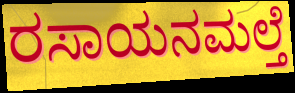
ರಸಾಯನಮಲ್ತೆ